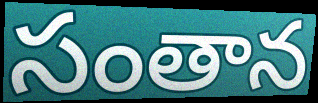
సంతాన